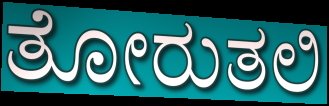
ತೋರುತಲಿ